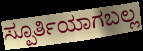
ಸ್ಪೂರ್ತಿಯಾಗಬಲ್ಲ